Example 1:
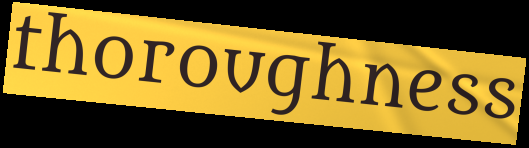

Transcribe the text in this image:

thoroughness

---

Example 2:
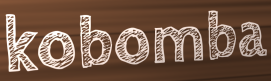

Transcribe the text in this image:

kobomba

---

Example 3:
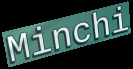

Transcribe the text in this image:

Minchi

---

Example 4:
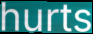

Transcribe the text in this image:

hurts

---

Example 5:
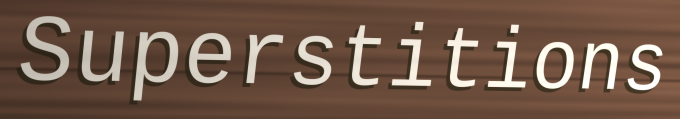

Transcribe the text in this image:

Superstitions